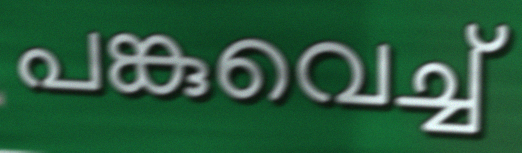
പങ്കുവെച്ച്